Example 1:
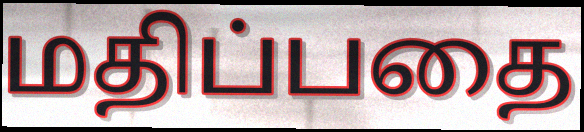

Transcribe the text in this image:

மதிப்பதை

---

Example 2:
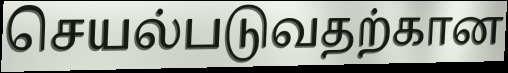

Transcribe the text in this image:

செயல்படுவதற்கான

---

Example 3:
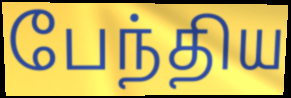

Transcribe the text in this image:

பேந்திய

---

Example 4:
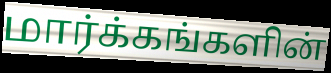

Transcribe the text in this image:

மார்க்கங்களின்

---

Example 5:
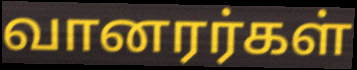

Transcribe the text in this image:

வானரர்கள்